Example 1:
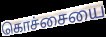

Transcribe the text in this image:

கொச்சையை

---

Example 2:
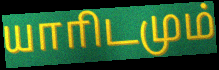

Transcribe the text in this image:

யாரிடமும்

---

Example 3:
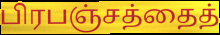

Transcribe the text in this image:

பிரபஞ்சத்தைத்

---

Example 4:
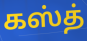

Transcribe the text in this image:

கஸ்த்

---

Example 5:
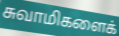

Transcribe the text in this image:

சுவாமிகளைக்